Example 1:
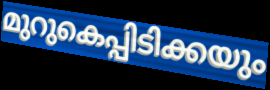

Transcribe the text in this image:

മുറുകെപ്പിടിക്കയും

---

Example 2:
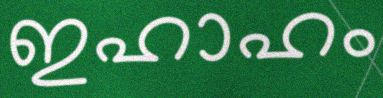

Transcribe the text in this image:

ഇഹാഹം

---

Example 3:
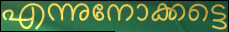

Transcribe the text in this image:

എന്നുനോക്കട്ടെ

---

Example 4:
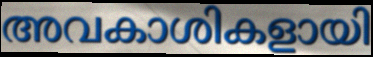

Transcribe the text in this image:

അവകാശികളായി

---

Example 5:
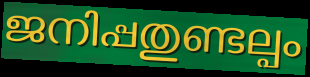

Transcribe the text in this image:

ജനിപ്പതുണ്ടല്പം